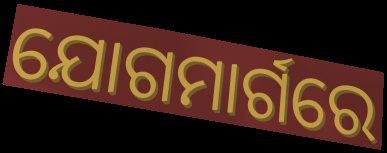
ଯୋଗମାର୍ଗରେ